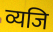
व्यजि